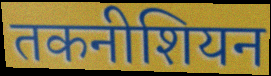
तकनीशियन